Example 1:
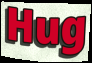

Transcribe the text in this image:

Hug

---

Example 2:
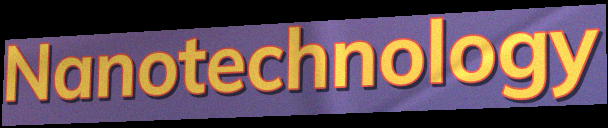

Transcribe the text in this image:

Nanotechnology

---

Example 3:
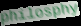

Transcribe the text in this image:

philosphy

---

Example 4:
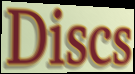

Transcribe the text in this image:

Discs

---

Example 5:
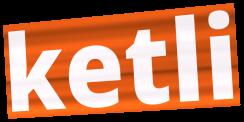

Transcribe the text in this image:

ketli